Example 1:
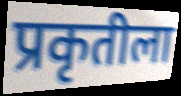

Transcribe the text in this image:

प्रकृतीला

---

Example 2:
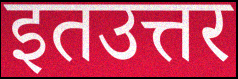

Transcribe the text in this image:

इतउत्तर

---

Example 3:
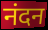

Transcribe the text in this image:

नंदन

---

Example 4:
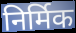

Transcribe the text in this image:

निर्मिक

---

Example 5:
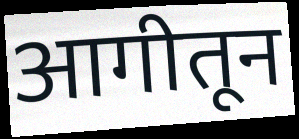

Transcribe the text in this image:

आगीतून